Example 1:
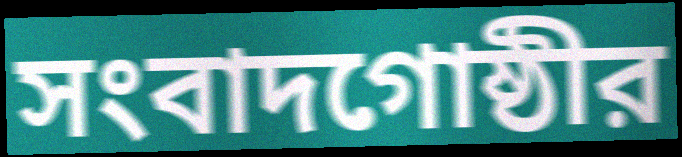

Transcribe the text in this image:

সংবাদগোষ্ঠীর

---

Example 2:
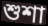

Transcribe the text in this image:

শুশা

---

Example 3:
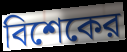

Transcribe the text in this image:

বিশেকের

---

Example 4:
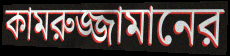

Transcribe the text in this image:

কামরুজ্জামানের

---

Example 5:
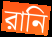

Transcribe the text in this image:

রানি